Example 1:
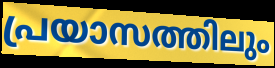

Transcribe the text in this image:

പ്രയാസത്തിലും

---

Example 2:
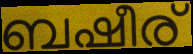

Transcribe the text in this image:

ബഷീര്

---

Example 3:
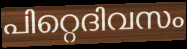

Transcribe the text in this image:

പിറ്റെദിവസം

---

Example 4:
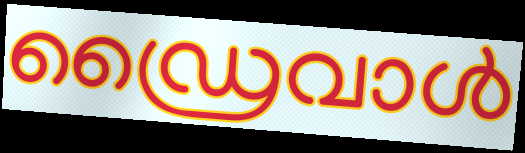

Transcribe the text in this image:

ഡ്രൈവാൾ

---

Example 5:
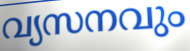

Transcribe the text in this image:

വ്യസനവും